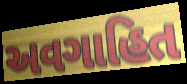
અવગાહિત